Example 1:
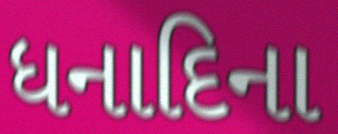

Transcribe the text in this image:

ધનાદિના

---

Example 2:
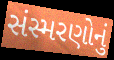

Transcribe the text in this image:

સંસ્મરણોનું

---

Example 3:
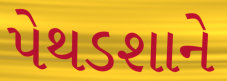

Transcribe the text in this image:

પેથડશાને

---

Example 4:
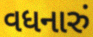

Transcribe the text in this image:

વધનારું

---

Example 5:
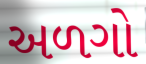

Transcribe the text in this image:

અળગો